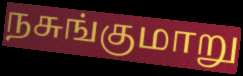
நசுங்குமாறு